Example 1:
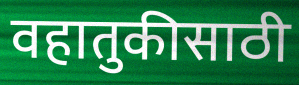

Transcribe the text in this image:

वहातुकीसाठी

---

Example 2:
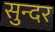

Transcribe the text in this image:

सुन्दर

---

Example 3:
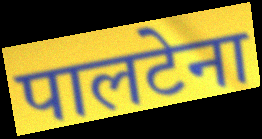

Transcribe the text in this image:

पालटेना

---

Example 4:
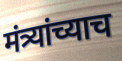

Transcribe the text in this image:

मंत्र्यांच्याच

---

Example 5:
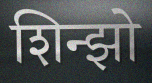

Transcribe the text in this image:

शिन्झो